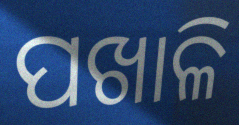
ପଖାଳି